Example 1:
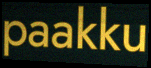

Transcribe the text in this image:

paakku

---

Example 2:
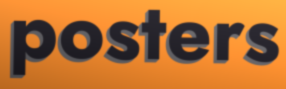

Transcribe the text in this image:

posters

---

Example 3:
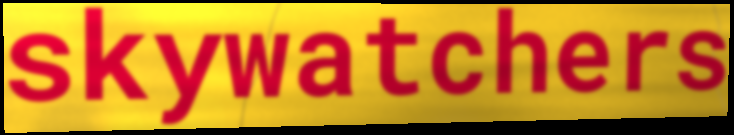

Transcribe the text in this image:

skywatchers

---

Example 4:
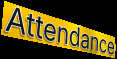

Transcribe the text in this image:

Attendance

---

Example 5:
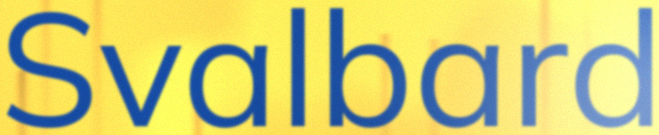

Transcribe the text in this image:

Svalbard